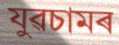
যুৱচামৰ